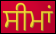
ਸੀਮਾਂ